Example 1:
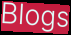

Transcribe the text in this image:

Blogs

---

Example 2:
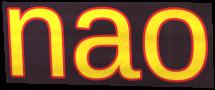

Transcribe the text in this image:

nao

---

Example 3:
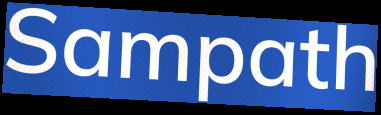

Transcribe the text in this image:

Sampath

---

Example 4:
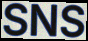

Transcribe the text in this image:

SNS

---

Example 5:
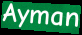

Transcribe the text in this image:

Ayman